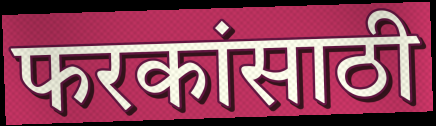
फरकांसाठी